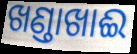
ଖଣ୍ଡାଖାଈ